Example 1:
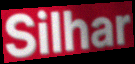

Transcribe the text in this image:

Silhar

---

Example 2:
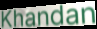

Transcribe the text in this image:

Khandan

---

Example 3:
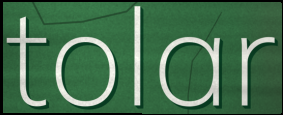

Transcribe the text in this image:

tolar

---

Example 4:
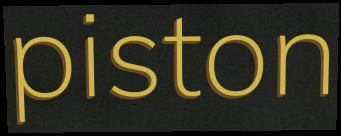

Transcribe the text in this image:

piston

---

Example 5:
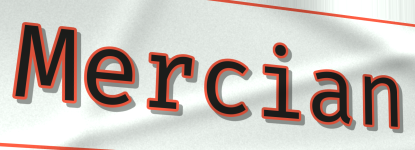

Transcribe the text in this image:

Mercian